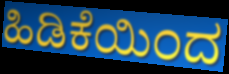
ಹಿಡಿಕೆಯಿಂದ